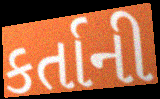
કર્તાની